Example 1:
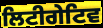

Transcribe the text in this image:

ਲਿਟੀਗੇਟਿਵ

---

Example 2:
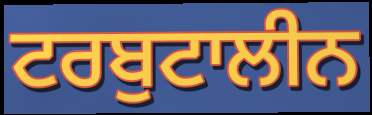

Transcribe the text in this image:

ਟਰਬੁਟਾਲੀਨ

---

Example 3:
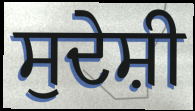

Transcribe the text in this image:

ਸੁਦੇਸ਼ੀ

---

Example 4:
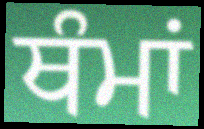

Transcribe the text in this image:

ਥੰਮਾਂ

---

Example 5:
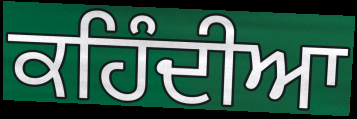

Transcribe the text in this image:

ਕਹਿੰਦੀਆ